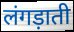
लंगड़ाती